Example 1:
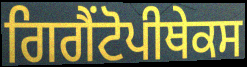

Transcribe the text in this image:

ਗਿਗੈਂਟੋਪੀਥੇਕਸ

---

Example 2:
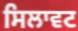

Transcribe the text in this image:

ਸਿਲਾਵਟ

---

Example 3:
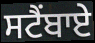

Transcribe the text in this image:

ਸਟੈਂਬਾਏ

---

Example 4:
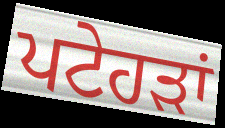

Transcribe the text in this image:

ਪਟੇਹੜਾਂ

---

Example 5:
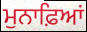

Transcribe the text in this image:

ਮੁਨਾਫ਼ਿਆਂ